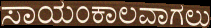
ಸಾಯಂಕಾಲವಾಗಲು